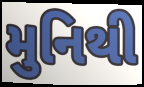
મુનિથી